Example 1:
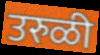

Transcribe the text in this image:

उरुळी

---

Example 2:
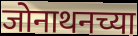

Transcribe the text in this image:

जोनाथनच्या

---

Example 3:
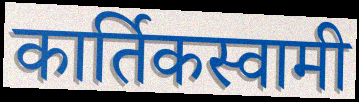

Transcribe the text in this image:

कार्तिकस्वामी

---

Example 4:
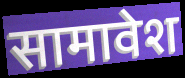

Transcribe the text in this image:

सामावेश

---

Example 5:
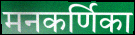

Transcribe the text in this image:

मनकर्णिका